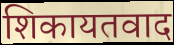
शिकायतवाद